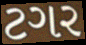
ટગર